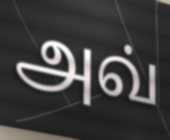
அவ்